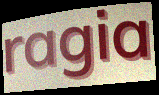
ragia